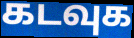
கடவுக